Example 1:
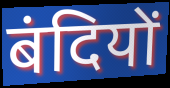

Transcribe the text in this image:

बंदियों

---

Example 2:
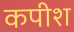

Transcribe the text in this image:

कपीश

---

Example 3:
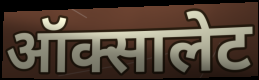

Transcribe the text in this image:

ऑक्सालेट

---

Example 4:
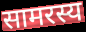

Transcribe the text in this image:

सामरस्य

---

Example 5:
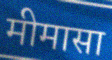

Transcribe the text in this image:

मीमासा